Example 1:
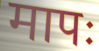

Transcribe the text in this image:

मापः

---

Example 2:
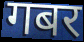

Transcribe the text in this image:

गबर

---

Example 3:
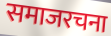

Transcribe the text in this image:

समाजरचना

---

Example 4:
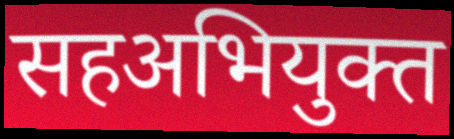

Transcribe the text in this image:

सहअभियुक्त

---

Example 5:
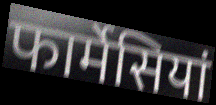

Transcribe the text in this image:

फार्मेसियां